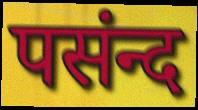
पसंन्द